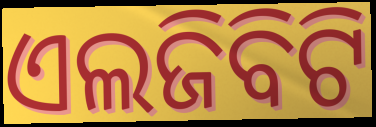
ଏଲଜିବିଟି